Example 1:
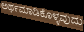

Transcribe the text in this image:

ಅರ್ಥಮಾಡಿಕೊಳ್ಳವುದು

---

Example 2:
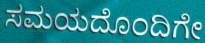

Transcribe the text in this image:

ಸಮಯದೊಂದಿಗೇ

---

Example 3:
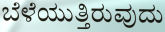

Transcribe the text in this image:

ಬೆಳೆಯುತ್ತಿರುವುದು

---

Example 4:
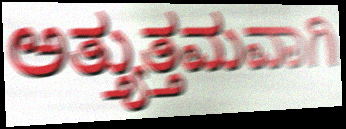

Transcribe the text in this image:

ಅತ್ತ್ಯುತ್ತಮವಾಗಿ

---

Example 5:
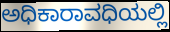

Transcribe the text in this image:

ಅಧಿಕಾರಾವಧಿಯಲ್ಲಿ